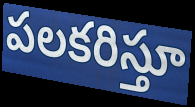
పలకరిస్తూ